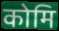
कोमि